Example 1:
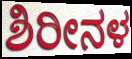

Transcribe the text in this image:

ಶಿರೀನಳ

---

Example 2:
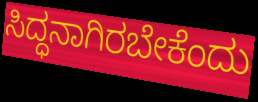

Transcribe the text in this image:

ಸಿದ್ಧನಾಗಿರಬೇಕೆಂದು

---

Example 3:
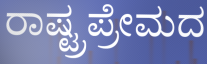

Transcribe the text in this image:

ರಾಷ್ಟ್ರಪ್ರೇಮದ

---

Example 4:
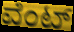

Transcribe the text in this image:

ವೆಂಟ್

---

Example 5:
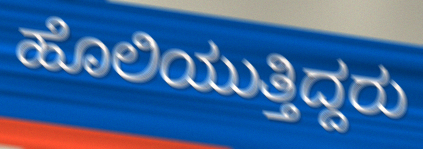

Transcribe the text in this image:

ಹೊಲಿಯುತ್ತಿದ್ದರು